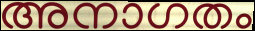
അനാഗതം